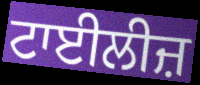
ਟਾਈਲੀਜ਼